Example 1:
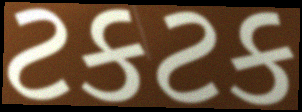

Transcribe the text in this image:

ટકટક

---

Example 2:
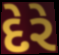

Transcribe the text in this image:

દેરે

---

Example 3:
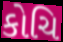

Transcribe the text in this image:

કોચિ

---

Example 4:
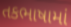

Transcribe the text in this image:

તકભાષામાં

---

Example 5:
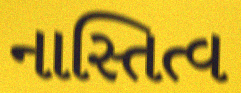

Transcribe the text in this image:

નાસ્તિત્વ